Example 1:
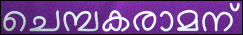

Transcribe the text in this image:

ചെമ്പകരാമന്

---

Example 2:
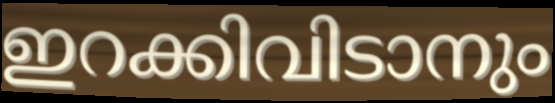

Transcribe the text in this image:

ഇറക്കിവിടാനും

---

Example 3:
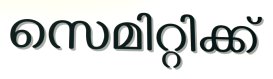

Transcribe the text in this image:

സെമിറ്റിക്ക്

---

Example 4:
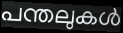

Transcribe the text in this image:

പന്തലുകൾ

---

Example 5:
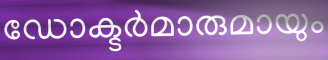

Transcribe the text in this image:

ഡോക്ടർമാരുമായും